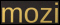
mozi